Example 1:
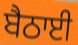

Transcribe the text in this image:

ਬੈਠਾਈ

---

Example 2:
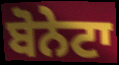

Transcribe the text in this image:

ਬੋਨੇਟਾ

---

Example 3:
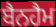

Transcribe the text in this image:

ਬੈਨਹੈਮ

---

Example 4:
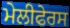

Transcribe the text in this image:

ਮੇਲੀਫੇਰਸ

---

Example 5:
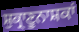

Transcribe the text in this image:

ਸ਼ੁਕ੍ਰਾਣੂਨਾਸ਼ਕਾਂ